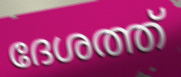
ദേശത്ത്